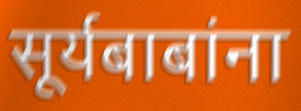
सूर्यबाबांना